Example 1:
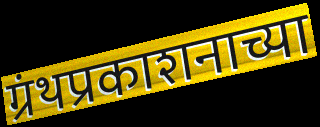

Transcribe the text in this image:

ग्रंथप्रकाशनाच्या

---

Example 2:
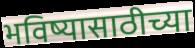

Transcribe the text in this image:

भविष्यासाठीच्या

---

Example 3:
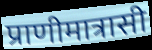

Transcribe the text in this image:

प्राणीमात्रासी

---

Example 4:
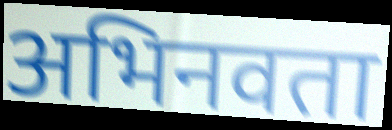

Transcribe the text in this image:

अभिनवता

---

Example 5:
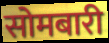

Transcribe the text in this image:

सोमबारी